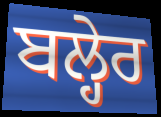
ਬਲ੍ਹੇਰ